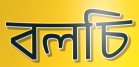
বলচি